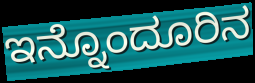
ಇನ್ನೊಂದೂರಿನ